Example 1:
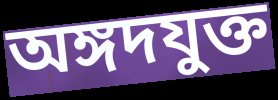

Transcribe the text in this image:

অঙ্গদযুক্ত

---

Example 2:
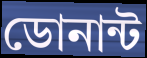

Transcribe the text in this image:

ডোনান্ট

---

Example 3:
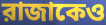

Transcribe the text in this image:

রাজাকেও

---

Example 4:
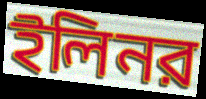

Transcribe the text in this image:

ইলিনর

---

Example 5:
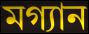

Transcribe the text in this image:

মগ্যান